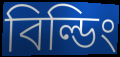
বিল্ডিং